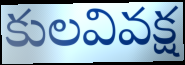
కులవివక్ష